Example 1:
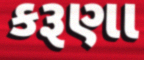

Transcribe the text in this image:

કરૂણા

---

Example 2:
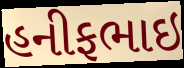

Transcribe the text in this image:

હનીફભાઇ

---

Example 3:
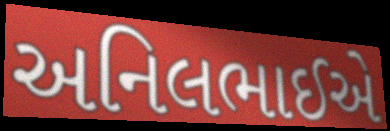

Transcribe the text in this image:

અનિલભાઈએ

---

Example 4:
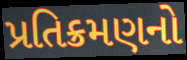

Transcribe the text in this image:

પ્રતિક્રમણનો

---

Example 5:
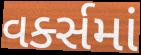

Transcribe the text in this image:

વર્ક્સમાં